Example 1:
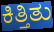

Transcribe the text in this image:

ಕಿತ್ತಿತು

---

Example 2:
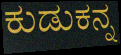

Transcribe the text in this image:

ಕುಡುಕನ್ನ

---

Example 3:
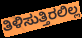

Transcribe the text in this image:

ತಿಳಿಸುತ್ತಿರಲಿಲ್ಲ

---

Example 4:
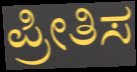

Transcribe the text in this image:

ಪ್ರೀತಿಸ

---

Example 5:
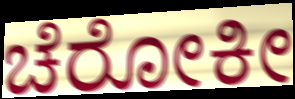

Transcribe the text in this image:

ಚೆರೋಕೀ